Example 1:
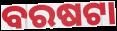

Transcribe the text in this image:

ବରଷଟା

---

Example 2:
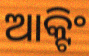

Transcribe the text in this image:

ଆକ୍ଟିଂ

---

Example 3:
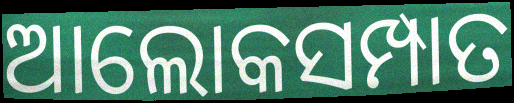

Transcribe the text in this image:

ଆଲୋକସମ୍ପାତ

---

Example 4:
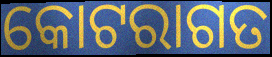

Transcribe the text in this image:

କୋଟରାଗତ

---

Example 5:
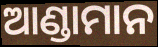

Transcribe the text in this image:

ଆଣ୍ଡାମାନ